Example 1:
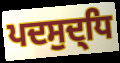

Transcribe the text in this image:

ਪਦਸੁਦ੍ਧਿ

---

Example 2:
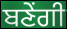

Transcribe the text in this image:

ਬਣੇਂਗੀ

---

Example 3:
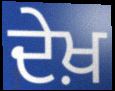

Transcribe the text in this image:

ਦੇਖ਼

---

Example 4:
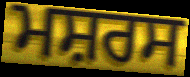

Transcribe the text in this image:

ਮਸ਼ਰਸ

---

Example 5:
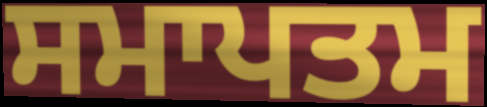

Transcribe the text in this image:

ਸਮਾਪਤਮ